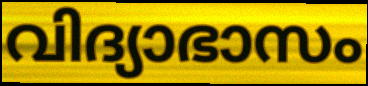
വിദ്യാഭാസം